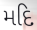
મદિ